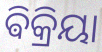
ଵିକ୍ରିୟା